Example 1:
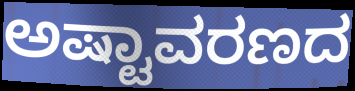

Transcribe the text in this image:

ಅಷ್ಟಾವರಣದ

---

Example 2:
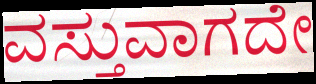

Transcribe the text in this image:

ವಸ್ತುವಾಗದೇ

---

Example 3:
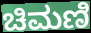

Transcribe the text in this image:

ಚಿಮಣಿ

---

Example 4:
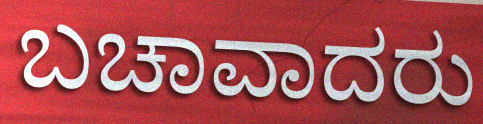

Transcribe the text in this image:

ಬಚಾವಾದರು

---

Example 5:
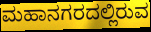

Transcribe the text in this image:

ಮಹಾನಗರದಲ್ಲಿರುವ